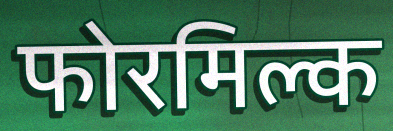
फोरमिल्क